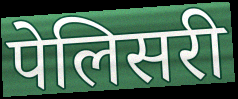
पेलिसरी